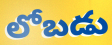
లోబడు